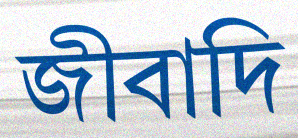
জীবাদি